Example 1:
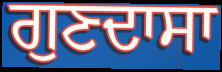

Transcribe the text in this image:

ਗੁਣਦਾਸਾ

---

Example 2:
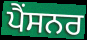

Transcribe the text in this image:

ਪੈਂਸਨਰ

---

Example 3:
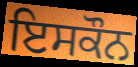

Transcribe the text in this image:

ਇਸਕੌਨ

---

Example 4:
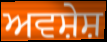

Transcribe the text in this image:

ਅਵਸ਼ੇਸ਼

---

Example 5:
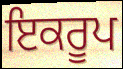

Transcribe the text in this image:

ਇਕਰੂਪ